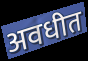
अवधीत